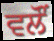
ਵਲੌਂ